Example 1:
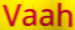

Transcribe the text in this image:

Vaah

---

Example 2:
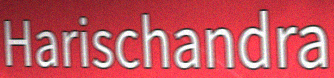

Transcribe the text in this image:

Harischandra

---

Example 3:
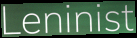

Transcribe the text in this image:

Leninist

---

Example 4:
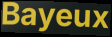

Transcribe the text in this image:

Bayeux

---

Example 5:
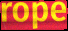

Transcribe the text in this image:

rope